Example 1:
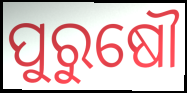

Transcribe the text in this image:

ପୁରୁଷୌ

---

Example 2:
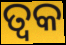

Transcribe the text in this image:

ତ୍ୱକ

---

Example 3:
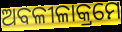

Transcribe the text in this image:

ଅବଳୀଳାକ୍ରମେ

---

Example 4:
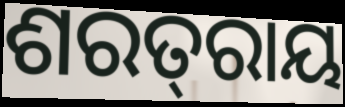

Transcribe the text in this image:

ଶରତ୍‌ରାୟ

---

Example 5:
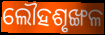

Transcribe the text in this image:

ଲୌହଶୃଙ୍ଖଳ